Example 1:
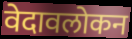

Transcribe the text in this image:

वेदावलोकन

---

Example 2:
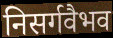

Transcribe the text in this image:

निसर्गवैभव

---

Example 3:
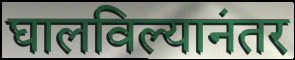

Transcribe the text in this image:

घालविल्यानंतर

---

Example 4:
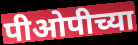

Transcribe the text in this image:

पीओपीच्या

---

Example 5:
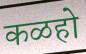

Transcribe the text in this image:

कळहो